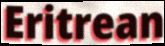
Eritrean